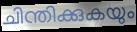
ചിന്തിക്കുകയും